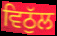
ਵਿਠੁੱਲ